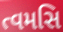
ત્વમસિ